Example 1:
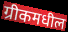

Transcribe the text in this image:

ग्रीकमधील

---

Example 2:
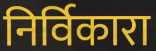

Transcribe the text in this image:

निर्विकारा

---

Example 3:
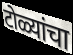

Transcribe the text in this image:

टोळ्यांचा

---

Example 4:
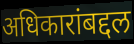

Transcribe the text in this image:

अधिकारांबद्दल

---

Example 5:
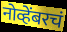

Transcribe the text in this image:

नोव्हेंबरचं